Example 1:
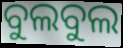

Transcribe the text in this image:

ବୁଲବୁଲ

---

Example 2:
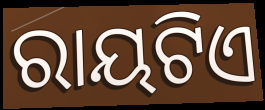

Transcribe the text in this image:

ରାୟଟିଏ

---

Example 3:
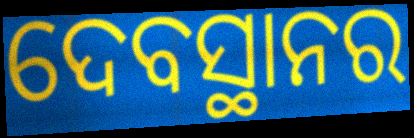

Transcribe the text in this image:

ଦେବସ୍ଥାନର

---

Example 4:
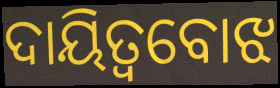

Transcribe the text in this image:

ଦାୟିତ୍ୱବୋଝ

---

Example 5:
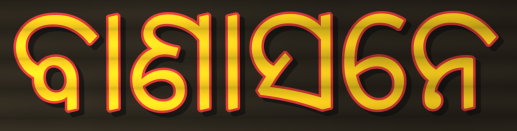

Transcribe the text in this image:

ବାଣାସନେ